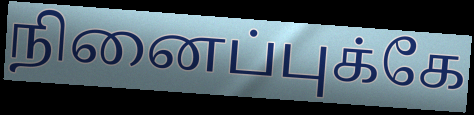
நினைப்புக்கே